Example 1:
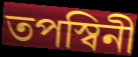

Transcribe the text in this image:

তপস্বিনী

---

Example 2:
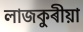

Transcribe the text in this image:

লাজকুৰীয়া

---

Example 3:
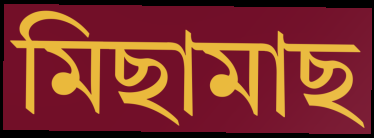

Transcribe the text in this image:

মিছামাছ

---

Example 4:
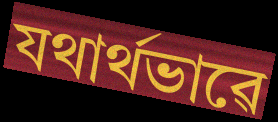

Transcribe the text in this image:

যথাৰ্থভাৱে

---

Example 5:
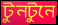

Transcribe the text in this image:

টুনটুনে